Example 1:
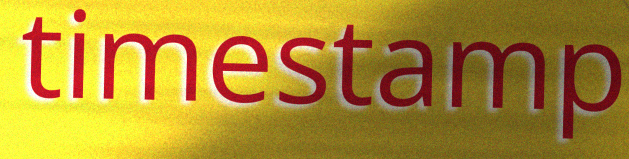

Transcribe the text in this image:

timestamp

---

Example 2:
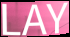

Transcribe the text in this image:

LAY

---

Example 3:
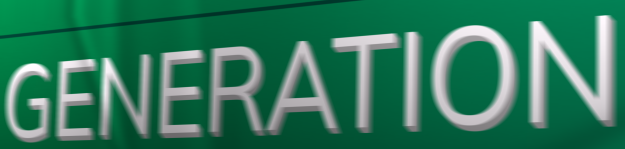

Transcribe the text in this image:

GENERATION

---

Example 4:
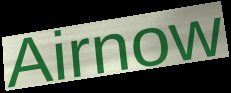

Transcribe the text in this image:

Airnow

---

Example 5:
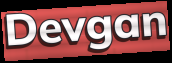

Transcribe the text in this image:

Devgan